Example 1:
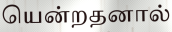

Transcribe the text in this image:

யென்றதனால்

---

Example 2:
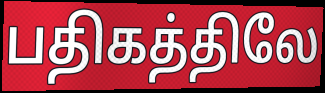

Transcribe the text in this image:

பதிகத்திலே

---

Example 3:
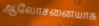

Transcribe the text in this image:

ஆலோசனையாக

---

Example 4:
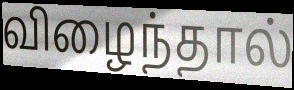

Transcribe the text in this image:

விழைந்தால்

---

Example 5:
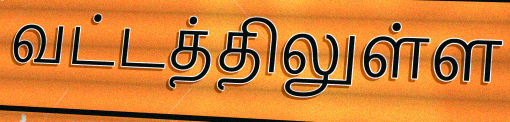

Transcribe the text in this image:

வட்டத்திலுள்ள